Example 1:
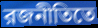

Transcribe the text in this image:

রজনীতিতে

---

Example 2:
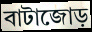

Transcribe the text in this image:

বাটাজোড়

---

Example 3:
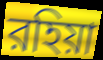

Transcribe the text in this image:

রহিয়া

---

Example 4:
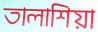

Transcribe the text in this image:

তালাশিয়া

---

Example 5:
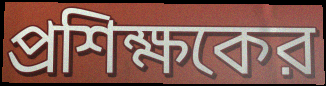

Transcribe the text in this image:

প্রশিক্ষকের